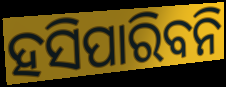
ହସିପାରିବନି